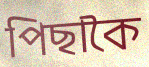
পিছাকৈ